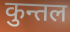
कुन्तल